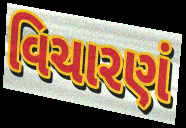
વિચારણં